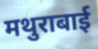
मथुराबाई